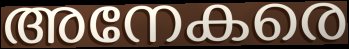
അനേകരെ